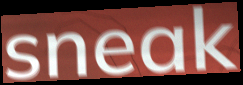
sneak